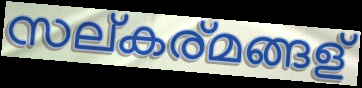
സല്കര്മങ്ങള്